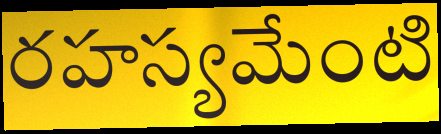
రహస్యమేంటి